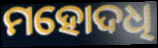
ମହୋଦଧି